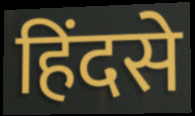
हिंदसे